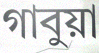
গাবুয়া